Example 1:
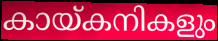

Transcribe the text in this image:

കായ്കനികളും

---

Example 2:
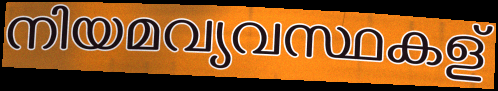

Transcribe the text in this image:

നിയമവ്യവസ്ഥകള്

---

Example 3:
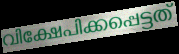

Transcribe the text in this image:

വിക്ഷേപിക്കപ്പെട്ടത്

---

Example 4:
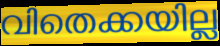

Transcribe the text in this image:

വിതെക്കയില്ല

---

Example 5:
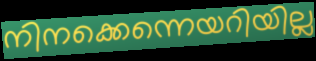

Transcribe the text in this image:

നിനക്കെന്നെയറിയില്ല